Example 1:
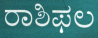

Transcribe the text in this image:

ರಾಶಿಫಲ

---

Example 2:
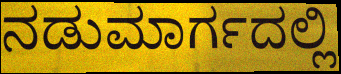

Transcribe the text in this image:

ನಡುಮಾರ್ಗದಲ್ಲಿ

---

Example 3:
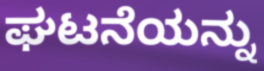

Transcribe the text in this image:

ಘಟನೆಯನ್ನು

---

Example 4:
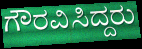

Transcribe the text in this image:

ಗೌರವಿಸಿದ್ದರು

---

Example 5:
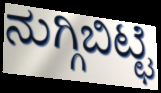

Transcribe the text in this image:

ನುಗ್ಗಿಬಿಟ್ಟೆ